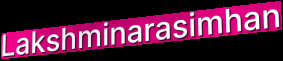
Lakshminarasimhan